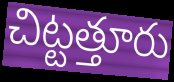
చిట్టత్తూరు